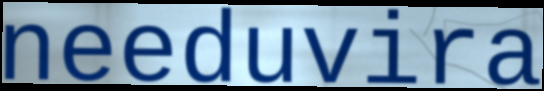
needuvira